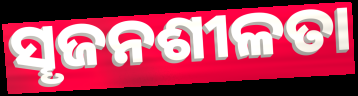
ସୄଜନଶୀଳତା